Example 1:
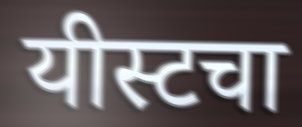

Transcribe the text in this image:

यीस्टचा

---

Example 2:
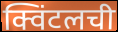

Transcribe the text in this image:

क्विंटलची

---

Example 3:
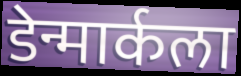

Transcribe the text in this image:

डेन्मार्कला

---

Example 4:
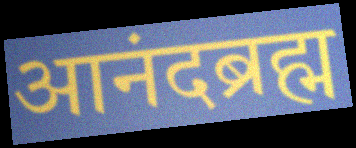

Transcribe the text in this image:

आनंदब्रह्म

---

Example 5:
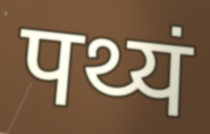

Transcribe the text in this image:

पथ्यं